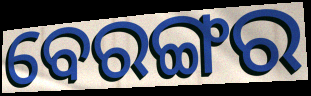
ବେରଙ୍ଗର